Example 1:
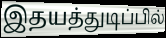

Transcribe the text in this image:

இதயத்துடிப்பில்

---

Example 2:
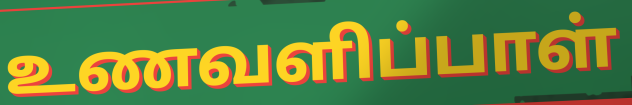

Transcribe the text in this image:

உணவளிப்பாள்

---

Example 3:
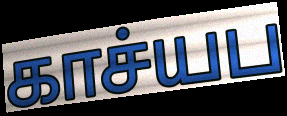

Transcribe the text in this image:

காச்யப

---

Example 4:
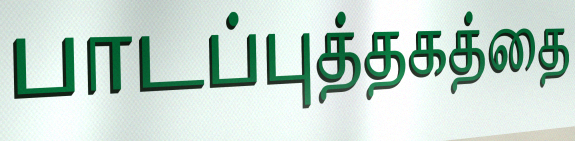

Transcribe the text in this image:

பாடப்புத்தகத்தை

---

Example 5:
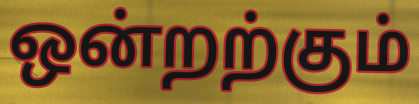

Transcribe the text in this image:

ஒன்றற்கும்